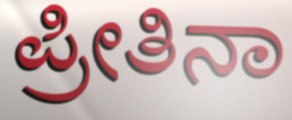
ಪ್ರೀತಿನಾ